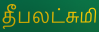
தீபலட்சுமி